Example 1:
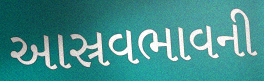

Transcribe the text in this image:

આસ્રવભાવની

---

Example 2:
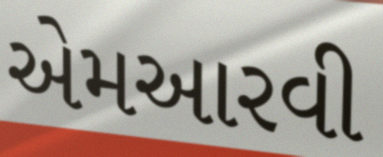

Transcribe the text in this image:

એમઆરવી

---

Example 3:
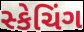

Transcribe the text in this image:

સ્કેચિંગ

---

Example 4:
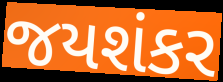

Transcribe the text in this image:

જયશંકર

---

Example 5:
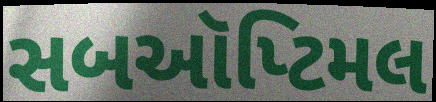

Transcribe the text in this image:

સબઑપ્ટિમલ